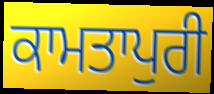
ਕਾਮਤਾਪੁਰੀ